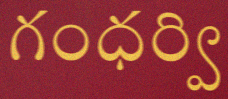
గంధర్వి